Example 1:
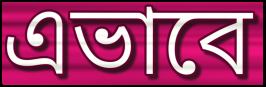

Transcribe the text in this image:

এভাবে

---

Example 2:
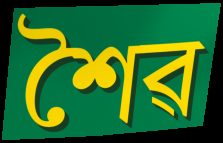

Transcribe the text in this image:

শৈৱ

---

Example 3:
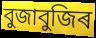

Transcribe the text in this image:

বুজাবুজিৰ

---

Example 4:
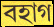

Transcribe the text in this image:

বহাগ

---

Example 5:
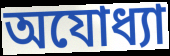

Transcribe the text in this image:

অযোধ্যা